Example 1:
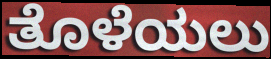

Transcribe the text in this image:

ತೊಳೆಯಲು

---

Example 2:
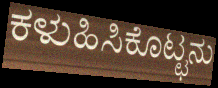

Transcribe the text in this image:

ಕಳುಹಿಸಿಕೊಟ್ಟನು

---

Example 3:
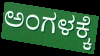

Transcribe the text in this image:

ಅಂಗಳಕ್ಕೆ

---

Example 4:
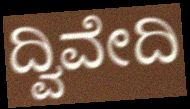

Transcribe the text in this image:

ದ್ವಿವೇದಿ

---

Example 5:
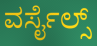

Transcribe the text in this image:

ವರ್ಸೈಲ್ಸ್